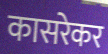
कासरेकर